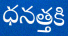
ధనత్తకి